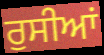
ਰੁਸੀਆਂ